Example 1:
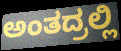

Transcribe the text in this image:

ಅಂತದ್ರಲ್ಲಿ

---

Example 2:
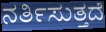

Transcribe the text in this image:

ನರ್ತಿಸುತ್ತದೆ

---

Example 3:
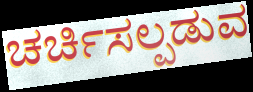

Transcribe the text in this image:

ಚರ್ಚಿಸಲ್ಪಡುವ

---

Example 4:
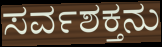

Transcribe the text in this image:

ಸರ್ವಶಕ್ತನು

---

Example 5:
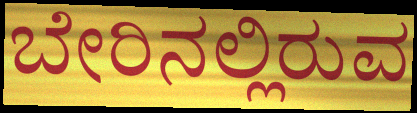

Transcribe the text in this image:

ಬೇರಿನಲ್ಲಿರುವ